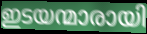
ഇടയന്മാരായി